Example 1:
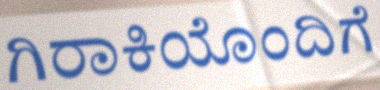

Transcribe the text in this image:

ಗಿರಾಕಿಯೊಂದಿಗೆ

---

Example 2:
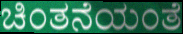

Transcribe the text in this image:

ಚಿಂತನೆಯಂತೆ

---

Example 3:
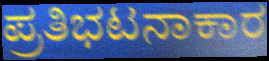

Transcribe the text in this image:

ಪ್ರತಿಭಟನಾಕಾರ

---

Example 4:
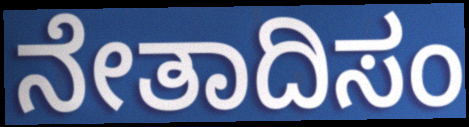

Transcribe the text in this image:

ನೇತಾದಿಸಂ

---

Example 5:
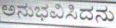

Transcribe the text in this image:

ಅನುಭವಿಸಿದನು